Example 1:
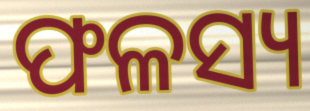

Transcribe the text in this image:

ଫଳସ୍ୟ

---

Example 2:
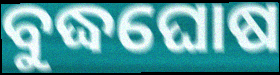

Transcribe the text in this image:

ବୁଦ୍ଧଘୋଷ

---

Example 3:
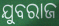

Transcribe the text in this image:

ଯୁବରାଜ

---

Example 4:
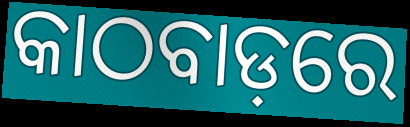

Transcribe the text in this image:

କାଠବାଡ଼ରେ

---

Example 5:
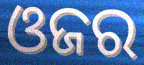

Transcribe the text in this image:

ଓଜର